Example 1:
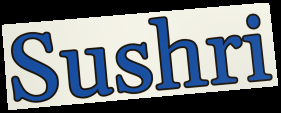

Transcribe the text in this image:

Sushri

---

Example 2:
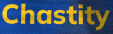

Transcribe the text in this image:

Chastity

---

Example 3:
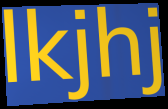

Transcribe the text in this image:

lkjhj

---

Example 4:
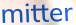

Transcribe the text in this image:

mitter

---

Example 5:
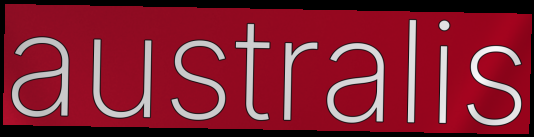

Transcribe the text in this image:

australis